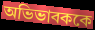
অভিভাবককে